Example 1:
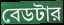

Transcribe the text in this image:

বেডটার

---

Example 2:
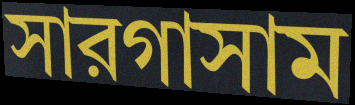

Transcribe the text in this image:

সারগাসাম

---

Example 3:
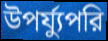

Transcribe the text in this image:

উপর্য্যুপরি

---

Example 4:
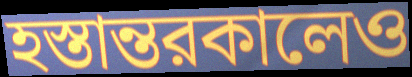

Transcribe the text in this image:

হস্তান্তরকালেও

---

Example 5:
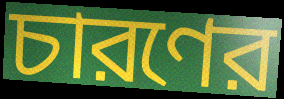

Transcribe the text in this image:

চারণের